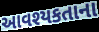
આવશ્યકતાના